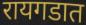
रायगडात